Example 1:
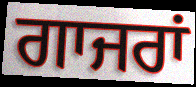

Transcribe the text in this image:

ਗਾਜਰਾਂ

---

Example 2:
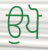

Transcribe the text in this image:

ਉਪੋ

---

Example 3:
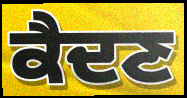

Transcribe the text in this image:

ਕੈਦਣ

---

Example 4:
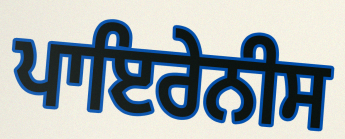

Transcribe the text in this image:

ਪਾਇਰੇਨੀਸ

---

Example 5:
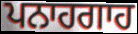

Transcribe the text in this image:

ਪਨਾਹਗਾਹ